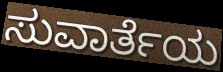
ಸುವಾರ್ತೆಯ